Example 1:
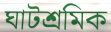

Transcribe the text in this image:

ঘাটশ্রমিক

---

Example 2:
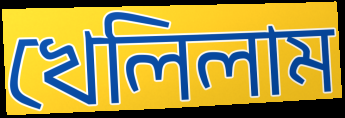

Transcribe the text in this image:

খেলিলাম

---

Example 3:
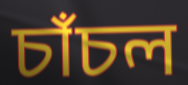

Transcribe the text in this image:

চাঁচল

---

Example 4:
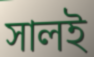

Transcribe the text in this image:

সালই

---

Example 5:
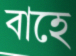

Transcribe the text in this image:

বাহে